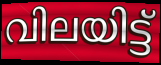
വിലയിട്ട്